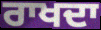
ਰਾਖਦਾ